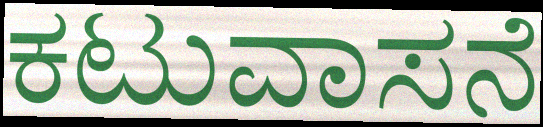
ಕಟುವಾಸನೆ